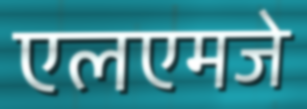
एलएमजे